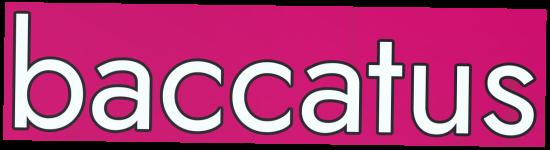
baccatus